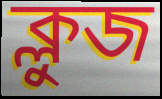
ক্লুজ